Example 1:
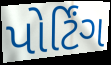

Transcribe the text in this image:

પોર્ટિંગ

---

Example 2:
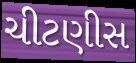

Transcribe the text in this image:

ચીટણીસ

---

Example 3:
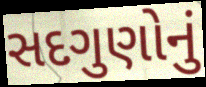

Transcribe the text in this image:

સદગુણોનું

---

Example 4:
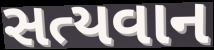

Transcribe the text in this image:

સત્યવાન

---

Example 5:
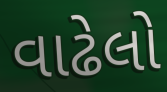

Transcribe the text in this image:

વાઢેલો